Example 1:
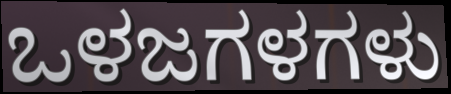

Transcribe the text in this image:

ಒಳಜಗಳಗಳು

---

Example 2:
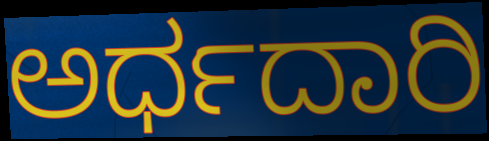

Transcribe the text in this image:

ಅರ್ಧದಾರಿ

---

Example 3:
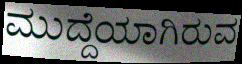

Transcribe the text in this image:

ಮುದ್ದೆಯಾಗಿರುವ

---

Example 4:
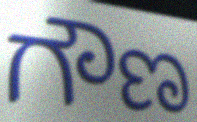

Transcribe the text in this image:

ಗೌಣ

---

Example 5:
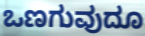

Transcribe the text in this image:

ಒಣಗುವುದೂ